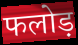
फलोड़